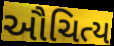
ઔચિત્ય